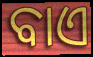
ବାଏ